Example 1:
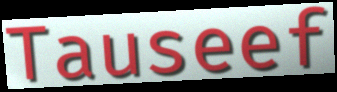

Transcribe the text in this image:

Tauseef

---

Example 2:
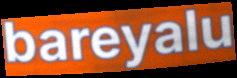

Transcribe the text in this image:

bareyalu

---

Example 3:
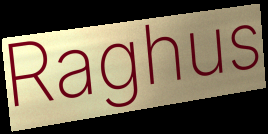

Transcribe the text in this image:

Raghus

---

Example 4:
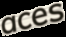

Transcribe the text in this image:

aces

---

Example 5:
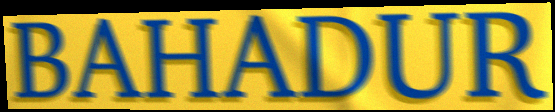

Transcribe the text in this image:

BAHADUR